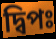
দ্বিপঃ